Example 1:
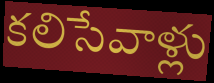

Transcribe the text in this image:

కలిసేవాళ్లు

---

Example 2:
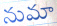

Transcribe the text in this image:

నుమా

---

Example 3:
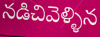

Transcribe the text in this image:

నడిచివెళ్ళిన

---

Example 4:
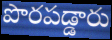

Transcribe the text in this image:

పొరపడ్డారు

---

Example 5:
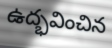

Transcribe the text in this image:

ఉద్భవించిన